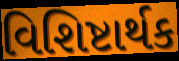
વિશિષ્ટાર્થક